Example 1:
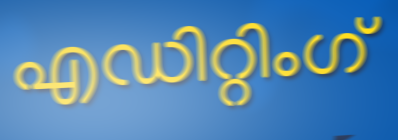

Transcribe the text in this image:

എഡിറ്റിംഗ്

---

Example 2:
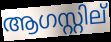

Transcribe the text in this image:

ആഗസ്റ്റില്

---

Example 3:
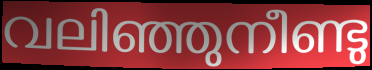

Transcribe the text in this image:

വലിഞ്ഞുനീണ്ടു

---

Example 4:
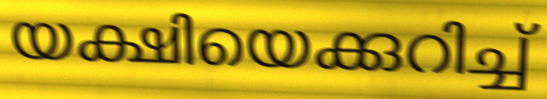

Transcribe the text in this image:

യക്ഷിയെക്കുറിച്ച്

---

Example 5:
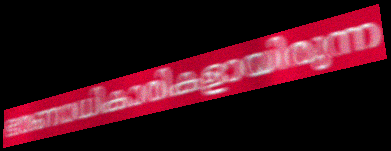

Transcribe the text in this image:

ഭരണാധികാരികളായിരുന്ന